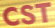
CST